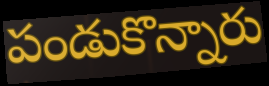
పండుకొన్నారు